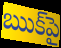
ఋక్‌పై